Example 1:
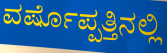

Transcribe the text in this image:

ವರ್ಷೊಪ್ಪತ್ತಿನಲ್ಲಿ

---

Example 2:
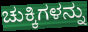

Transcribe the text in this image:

ಚುಕ್ಕಿಗಳನ್ನು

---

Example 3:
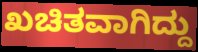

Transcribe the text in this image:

ಖಚಿತವಾಗಿದ್ದು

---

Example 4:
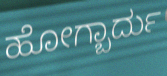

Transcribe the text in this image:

ಹೋಗ್ಬಾರ್ದು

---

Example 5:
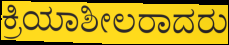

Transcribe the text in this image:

ಕ್ರಿಯಾಶೀಲರಾದರು